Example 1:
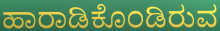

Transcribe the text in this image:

ಹಾರಾಡಿಕೊಂಡಿರುವ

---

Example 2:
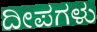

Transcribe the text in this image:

ದೀಪಗಳು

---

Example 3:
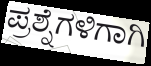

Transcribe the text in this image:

ಪ್ರಶ್ನೆಗಳಿಗಾಗಿ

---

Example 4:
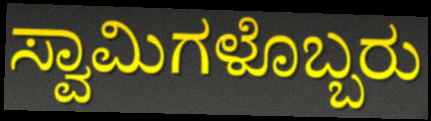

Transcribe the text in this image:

ಸ್ವಾಮಿಗಳೊಬ್ಬರು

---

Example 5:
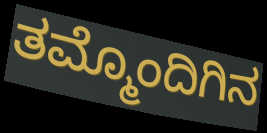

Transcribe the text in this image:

ತಮ್ಮೊಂದಿಗಿನ